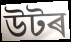
উটৰ